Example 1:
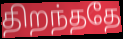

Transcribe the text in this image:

திறந்ததே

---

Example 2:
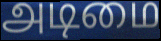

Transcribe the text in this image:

அடிமை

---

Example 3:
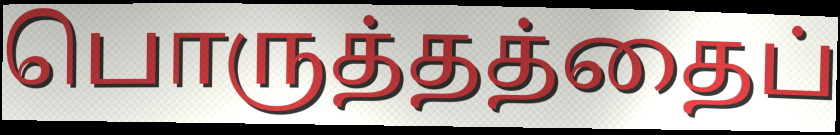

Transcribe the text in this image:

பொருத்தத்தைப்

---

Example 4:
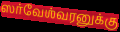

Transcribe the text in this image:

ஸர்வேஶ்வரனுக்கு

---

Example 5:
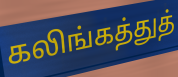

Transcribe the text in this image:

கலிங்கத்துத்